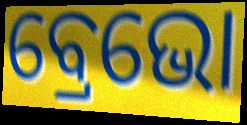
ବ୍ରେଭୋ